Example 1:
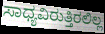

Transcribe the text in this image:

ಸಾಧ್ಯವಿರುತ್ತಿರಲಿಲ್ಲ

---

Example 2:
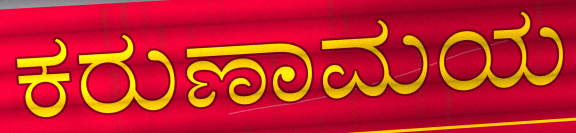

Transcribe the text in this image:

ಕರುಣಾಮಯ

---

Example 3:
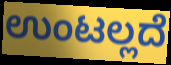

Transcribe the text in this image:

ಉಂಟಲ್ಲದೆ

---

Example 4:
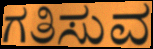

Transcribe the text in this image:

ಗತಿಸುವ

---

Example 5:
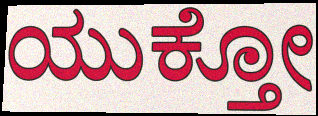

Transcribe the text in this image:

ಯುಕ್ತೋ